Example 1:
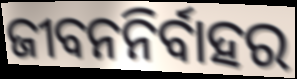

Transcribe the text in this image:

ଜୀବନନିର୍ବାହର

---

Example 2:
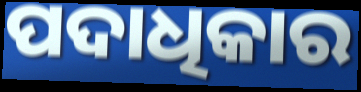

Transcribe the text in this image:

ପଦାଧିକାର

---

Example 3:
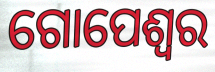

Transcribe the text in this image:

ଗୋପେଶ୍ଵର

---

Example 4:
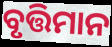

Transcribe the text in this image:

ବୃତ୍ତିମାନ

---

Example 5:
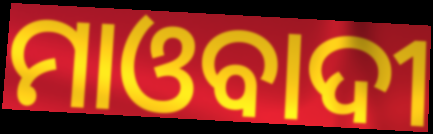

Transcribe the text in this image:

ମାଓବାଦୀ